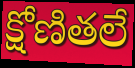
క్షోణితలే